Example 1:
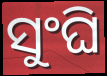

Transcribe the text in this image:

ସୁଂଘି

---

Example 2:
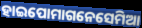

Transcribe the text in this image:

ହାଇପୋମାଗନେସେମିଆ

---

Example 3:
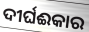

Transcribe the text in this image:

ଦୀର୍ଘଈକାର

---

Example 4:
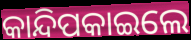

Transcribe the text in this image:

କାନ୍ଦିପକାଇଲେ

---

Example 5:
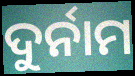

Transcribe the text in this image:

ଦୁର୍ନାମ